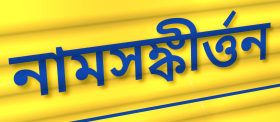
নামসঙ্কীর্ত্তন